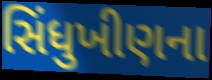
સિંધુખીણના